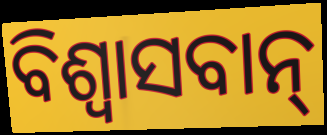
ବିଶ୍ଵାସବାନ୍